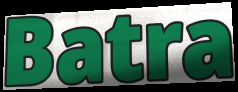
Batra